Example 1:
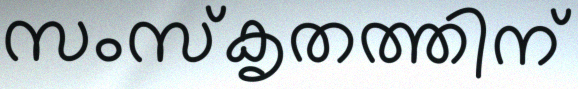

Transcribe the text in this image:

സംസ്കൃതത്തിന്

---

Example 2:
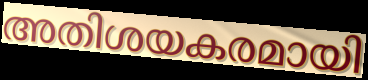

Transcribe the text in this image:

അതിശയകരമായി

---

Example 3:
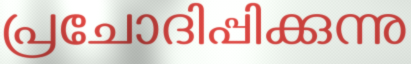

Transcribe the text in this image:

പ്രചോദിപ്പിക്കുന്നു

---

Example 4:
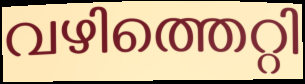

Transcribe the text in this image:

വഴിത്തെറ്റി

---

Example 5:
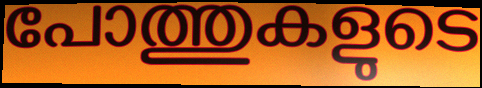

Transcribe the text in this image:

പോത്തുകളുടെ